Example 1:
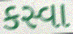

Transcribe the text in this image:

કસ્વા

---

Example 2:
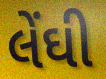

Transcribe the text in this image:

લેંઘી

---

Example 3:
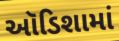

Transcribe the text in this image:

ઑડિશામાં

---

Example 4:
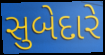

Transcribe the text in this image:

સુબેદારે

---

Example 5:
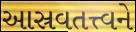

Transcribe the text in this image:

આસ્રવતત્ત્વને